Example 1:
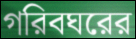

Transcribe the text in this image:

গরিবঘরের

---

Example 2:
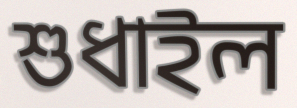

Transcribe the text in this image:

শুধাইল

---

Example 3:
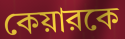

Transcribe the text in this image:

কেয়ারকে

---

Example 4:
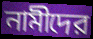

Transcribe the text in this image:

নামীদের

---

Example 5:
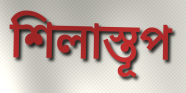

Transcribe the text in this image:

শিলাস্তূপ